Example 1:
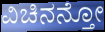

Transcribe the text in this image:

ವಿಚಿನನ್ತೋ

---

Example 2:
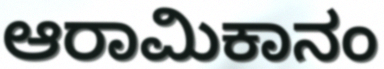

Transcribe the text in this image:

ಆರಾಮಿಕಾನಂ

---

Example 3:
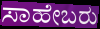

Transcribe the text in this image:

ಸಾಹೇಬರು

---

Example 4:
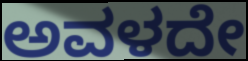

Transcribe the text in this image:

ಅವಳದೇ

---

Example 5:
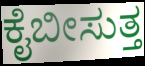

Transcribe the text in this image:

ಕೈಬೀಸುತ್ತ